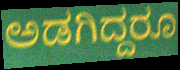
ಅಡಗಿದ್ದರೂ